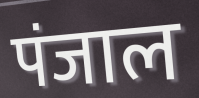
पंजाल